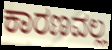
ಕಾರಣವಲ್ಲ